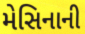
મેસિનાની